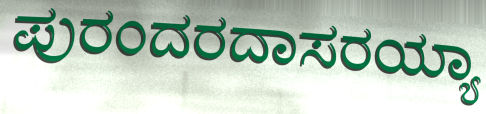
ಪುರಂದರದಾಸರಯ್ಯಾ